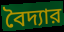
বৈদ্যার